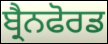
ਬ੍ਰੈਨਫੋਰਡ